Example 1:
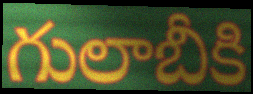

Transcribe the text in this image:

గులాబీకి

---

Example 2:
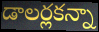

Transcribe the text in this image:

డాలర్లకన్నా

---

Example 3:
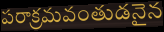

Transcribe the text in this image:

పరాక్రమవంతుడనైన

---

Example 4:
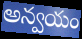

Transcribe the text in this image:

అన్వయం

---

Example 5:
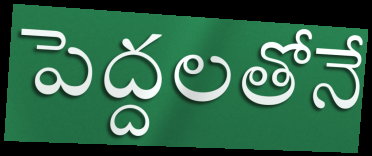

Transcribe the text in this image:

పెద్దలతోనే